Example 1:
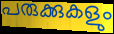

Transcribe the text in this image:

പരുക്കുകളും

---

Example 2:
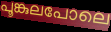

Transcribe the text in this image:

പൂങ്കുലപോലെ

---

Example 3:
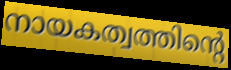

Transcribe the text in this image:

നായകത്വത്തിന്റെ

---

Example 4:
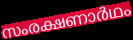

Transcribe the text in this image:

സംരക്ഷണാർഥം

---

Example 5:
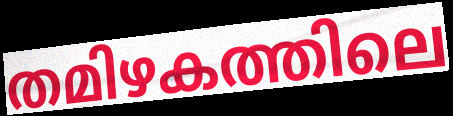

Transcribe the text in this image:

തമിഴകത്തിലെ